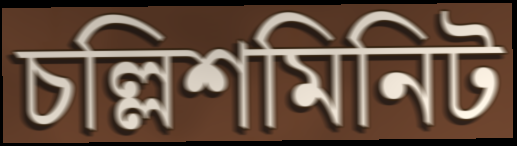
চল্লিশমিনিট